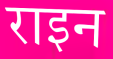
राइन